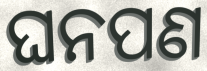
ଘନପଣ